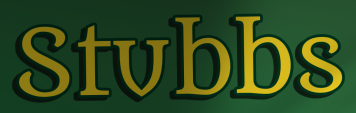
Stubbs